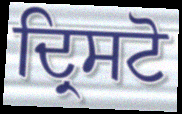
ਦ੍ਰਿਸਟੋ